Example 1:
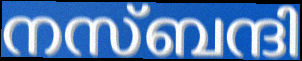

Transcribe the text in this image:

നസ്ബന്ദി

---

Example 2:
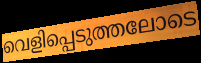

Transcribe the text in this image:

വെളിപ്പെടുത്തലോടെ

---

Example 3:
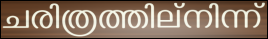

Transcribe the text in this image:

ചരിത്രത്തില്നിന്ന്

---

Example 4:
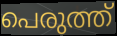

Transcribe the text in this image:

പെരുത്ത്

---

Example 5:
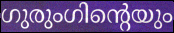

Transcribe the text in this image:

ഗുരുംഗിന്റെയും